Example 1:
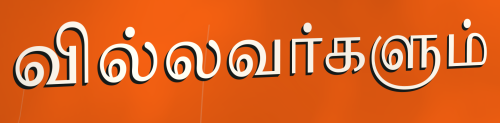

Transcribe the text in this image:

வில்லவர்களும்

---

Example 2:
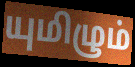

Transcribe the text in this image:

யுமிழும்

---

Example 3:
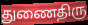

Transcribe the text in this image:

துணைதிரு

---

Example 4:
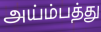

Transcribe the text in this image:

அய்ம்பத்து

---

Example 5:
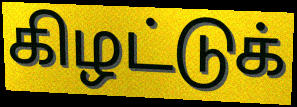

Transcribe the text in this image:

கிழட்டுக்